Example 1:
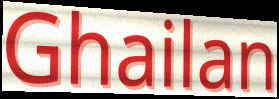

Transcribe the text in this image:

Ghailan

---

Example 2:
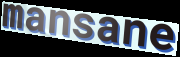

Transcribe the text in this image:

mansane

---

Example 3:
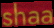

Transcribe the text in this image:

shaa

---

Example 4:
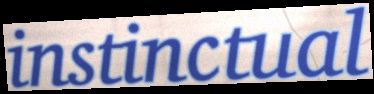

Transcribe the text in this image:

instinctual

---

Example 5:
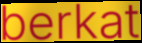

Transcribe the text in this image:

berkat